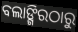
ବଲାଙ୍ଗିରଠାରୁ